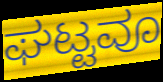
ಘಟ್ಟವೂ